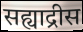
सह्याद्रीस